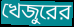
খেজুরের